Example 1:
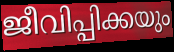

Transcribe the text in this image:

ജീവിപ്പിക്കയും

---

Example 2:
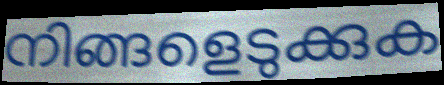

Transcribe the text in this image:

നിങ്ങളെടുക്കുക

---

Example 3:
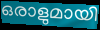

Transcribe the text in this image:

ഒരാളുമായി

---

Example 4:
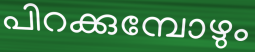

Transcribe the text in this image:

പിറക്കുമ്പോഴും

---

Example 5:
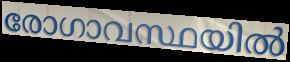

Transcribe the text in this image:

രോഗാവസ്ഥയിൽ